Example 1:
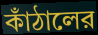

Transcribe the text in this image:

কাঁঠালের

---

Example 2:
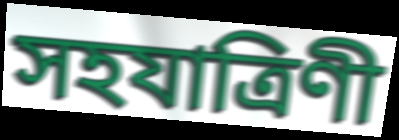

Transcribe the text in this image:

সহযাত্রিণী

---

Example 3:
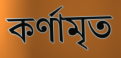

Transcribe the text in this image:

কর্ণামৃত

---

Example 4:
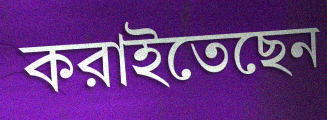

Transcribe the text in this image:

করাইতেছেন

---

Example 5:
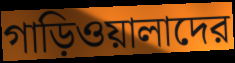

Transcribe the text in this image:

গাড়িওয়ালাদের